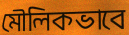
মৌলিকভাবে